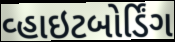
વ્હાઇટબોર્ડિંગ